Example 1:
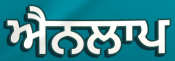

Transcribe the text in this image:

ਐਨਲਾਪ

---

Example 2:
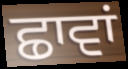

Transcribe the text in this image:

ਛਾਵਾਂ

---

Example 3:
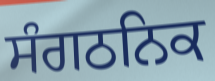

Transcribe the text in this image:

ਸੰਗਠਨਿਕ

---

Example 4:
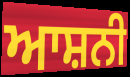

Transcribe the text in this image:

ਆਸ਼ਨੀ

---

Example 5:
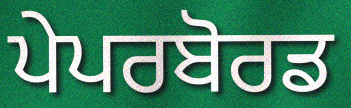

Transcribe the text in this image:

ਪੇਪਰਬੋਰਡ